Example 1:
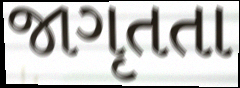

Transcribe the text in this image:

જાગૃતતા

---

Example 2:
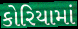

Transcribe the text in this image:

કોરિયામાં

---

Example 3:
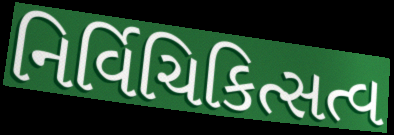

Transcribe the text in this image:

નિર્વિચિકિત્સત્વ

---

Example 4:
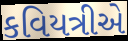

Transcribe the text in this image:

કવિયત્રીએ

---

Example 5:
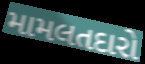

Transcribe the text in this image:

મામલતદારો